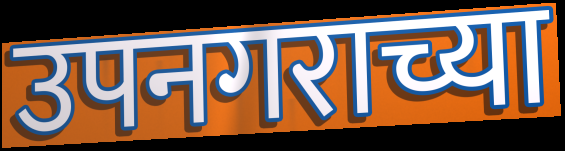
उपनगराच्या